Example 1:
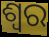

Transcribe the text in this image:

ଶ୍ୱର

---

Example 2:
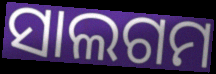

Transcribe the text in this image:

ସାଲଗମ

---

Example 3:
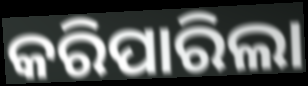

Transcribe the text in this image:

କରିପାରିଲା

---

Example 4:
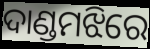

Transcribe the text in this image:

ଦାଣ୍ଡମଝିରେ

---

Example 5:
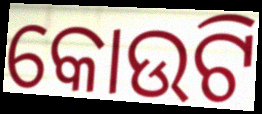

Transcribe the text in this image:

କୋଉଟି